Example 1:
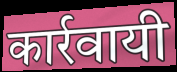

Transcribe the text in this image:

कार्रवायी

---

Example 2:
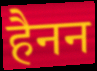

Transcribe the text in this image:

हैनन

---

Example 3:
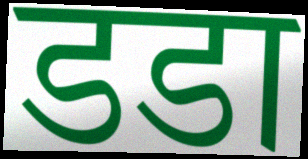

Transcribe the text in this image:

डडा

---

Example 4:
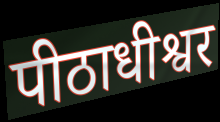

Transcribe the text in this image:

पीठाधीश्वर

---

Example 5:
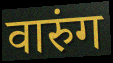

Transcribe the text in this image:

वारुंग